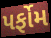
પર્ફોમ